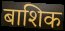
बाशिक